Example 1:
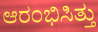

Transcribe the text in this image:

ಆರಂಭಿಸಿತ್ತು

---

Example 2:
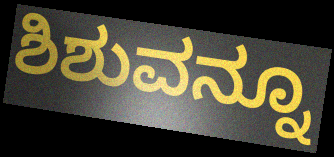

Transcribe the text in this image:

ಶಿಶುವನ್ನೂ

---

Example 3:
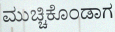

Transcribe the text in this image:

ಮುಚ್ಚಿಕೊಂಡಾಗ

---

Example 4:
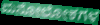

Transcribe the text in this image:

ಮನೋಲೋಕಗಳ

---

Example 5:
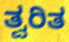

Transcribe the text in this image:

ತ್ವರಿತ